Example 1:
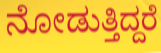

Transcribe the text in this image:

ನೋಡುತ್ತಿದ್ದರೆ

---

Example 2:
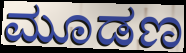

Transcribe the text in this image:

ಮೂಡಣ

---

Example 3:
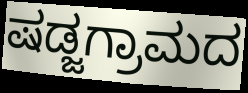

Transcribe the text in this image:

ಷಡ್ಜಗ್ರಾಮದ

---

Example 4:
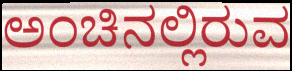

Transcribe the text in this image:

ಅಂಚಿನಲ್ಲಿರುವ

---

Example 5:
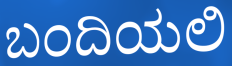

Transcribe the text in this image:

ಬಂದಿಯಲಿ